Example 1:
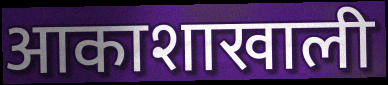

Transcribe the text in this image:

आकाशाखाली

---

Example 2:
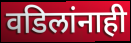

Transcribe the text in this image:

वडिलांनाही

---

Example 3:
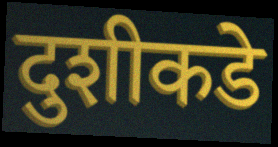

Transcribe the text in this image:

दुशीकडे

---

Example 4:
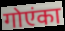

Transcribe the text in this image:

गोएंका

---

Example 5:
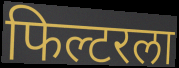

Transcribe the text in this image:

फिल्टरला